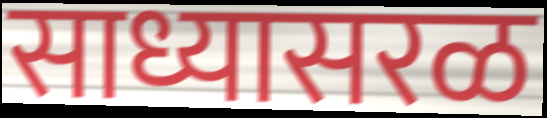
साध्यासरळ